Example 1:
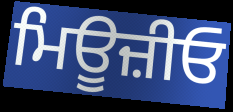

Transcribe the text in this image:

ਮਿਊਜ਼ੀਓ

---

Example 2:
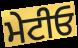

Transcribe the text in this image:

ਮੇਟੀਓ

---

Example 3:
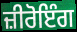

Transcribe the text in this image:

ਜ਼ੀਰੋਇੰਗ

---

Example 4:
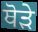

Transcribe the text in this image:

ਥੋਡ਼ੇ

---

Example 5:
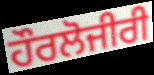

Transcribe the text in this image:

ਹੌਰਲੋਜੀਰੀ